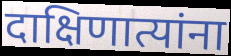
दाक्षिणात्यांना